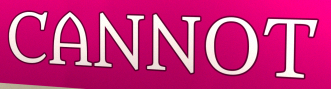
CANNOT